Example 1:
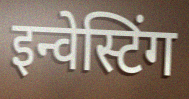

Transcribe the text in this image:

इन्वेस्टिंग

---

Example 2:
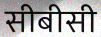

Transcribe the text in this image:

सीबीसी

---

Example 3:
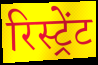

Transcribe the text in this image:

रिस्ट्रेंट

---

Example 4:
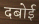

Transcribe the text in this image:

दबोई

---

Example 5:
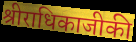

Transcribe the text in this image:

श्रीराधिकाजीकी